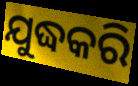
ଯୁଦ୍ଧକରି